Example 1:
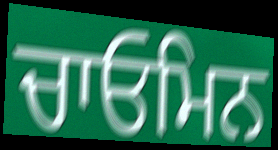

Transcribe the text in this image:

ਚਾਓਮਿਨ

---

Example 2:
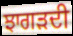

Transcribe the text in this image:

ਝਾਗੜਦੀ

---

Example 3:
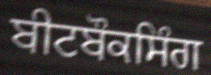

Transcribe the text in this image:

ਬੀਟਬੌਕਸਿੰਗ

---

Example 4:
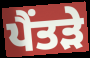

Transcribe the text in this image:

ਪੈਂਤੜੇ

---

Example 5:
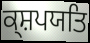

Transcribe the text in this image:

ਕ੍ਸ਼ਪਯਤਿ